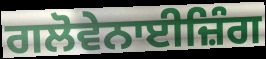
ਗਲੋਵੇਨਾਈਜ਼ਿੰਗ